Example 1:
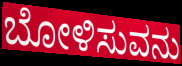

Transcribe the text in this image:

ಬೋಳಿಸುವನು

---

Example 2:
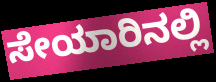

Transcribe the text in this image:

ಸೇಯಾರಿನಲ್ಲಿ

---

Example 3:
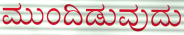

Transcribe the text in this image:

ಮುಂದಿಡುವುದು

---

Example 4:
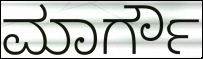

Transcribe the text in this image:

ಮಾರ್ಗೌ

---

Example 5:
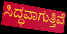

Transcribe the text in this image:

ಸಿದ್ಧವಾಗುತ್ತಿವೆ